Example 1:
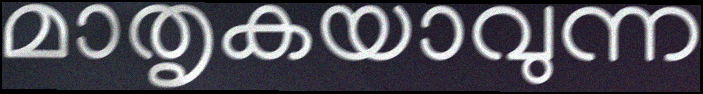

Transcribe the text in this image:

മാതൃകയാവുന്ന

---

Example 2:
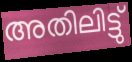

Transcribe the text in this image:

അതിലിട്ടു്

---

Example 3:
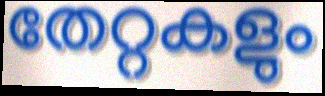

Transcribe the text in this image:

തേറ്റകളും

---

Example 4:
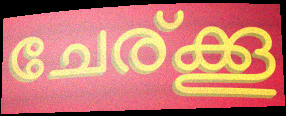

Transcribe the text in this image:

ചേര്ക്കൂ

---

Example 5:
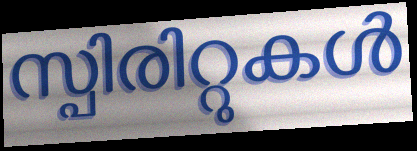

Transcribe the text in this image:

സ്പിരിറ്റുകൾ